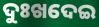
ଦୁଃଖଦେଇ